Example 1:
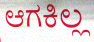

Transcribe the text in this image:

ಆಗಕಿಲ್ಲ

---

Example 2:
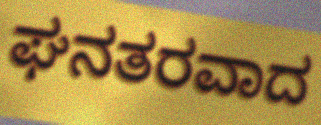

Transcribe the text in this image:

ಘನತರವಾದ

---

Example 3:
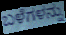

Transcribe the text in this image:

ಬಳೆಗಳನ್ನು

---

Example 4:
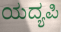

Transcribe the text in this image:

ಯದ್ಯಪಿ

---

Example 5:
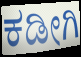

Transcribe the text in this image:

ಕಡೀಗಿ